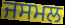
ਜਸਮਲ